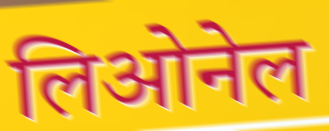
लिओनेल